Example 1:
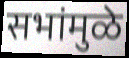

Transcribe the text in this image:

सभांमुळे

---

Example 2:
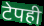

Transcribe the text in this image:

टेपही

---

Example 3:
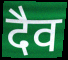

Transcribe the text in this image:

दैव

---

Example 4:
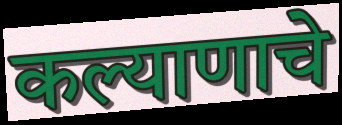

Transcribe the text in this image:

कल्याणाचे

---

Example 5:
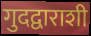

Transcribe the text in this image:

गुदद्वाराशी